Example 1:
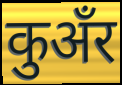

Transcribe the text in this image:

कुअँर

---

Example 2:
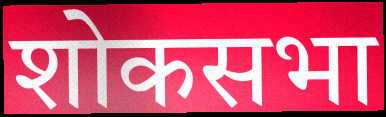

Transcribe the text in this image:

शोकसभा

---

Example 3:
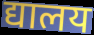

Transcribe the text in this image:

द्यालय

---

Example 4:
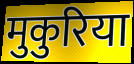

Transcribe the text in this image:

मुकुरिया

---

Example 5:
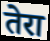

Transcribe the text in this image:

तेरा